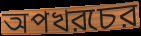
অপখরচের